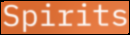
Spirits